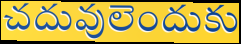
చదువులెందుకు